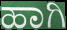
ಹಾಗಿ